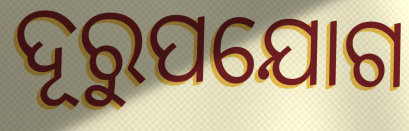
ଦୂରୁପଯୋଗ